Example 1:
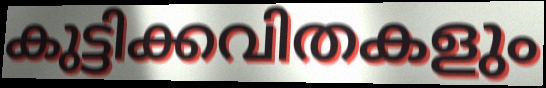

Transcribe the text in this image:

കുട്ടിക്കവിതകളും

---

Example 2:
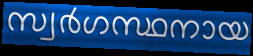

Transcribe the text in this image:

സ്വർഗസ്ഥനായ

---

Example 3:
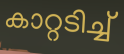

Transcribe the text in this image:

കാറ്റടിച്ച്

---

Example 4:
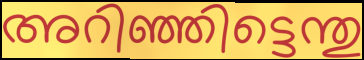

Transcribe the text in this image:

അറിഞ്ഞിട്ടെന്തു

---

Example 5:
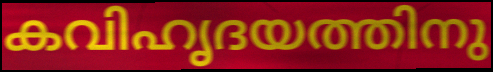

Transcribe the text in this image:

കവിഹൃദയത്തിനു